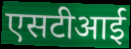
एसटीआई